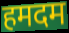
हमदम